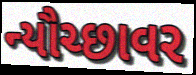
ન્યૌચ્છાવર